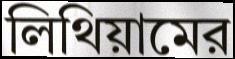
লিথিয়ামের